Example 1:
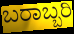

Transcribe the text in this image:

ಬರಾಬ್ಬರಿ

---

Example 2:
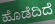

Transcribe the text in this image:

ಹೊಡೆದಿದೆ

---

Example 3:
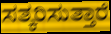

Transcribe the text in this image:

ಸತ್ಕರಿಸುತ್ತಾರೆ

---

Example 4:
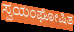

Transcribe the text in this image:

ಸ್ವಯಂಘೋಷಿತ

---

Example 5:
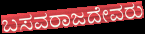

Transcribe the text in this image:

ಬಸವರಾಜದೇವರು